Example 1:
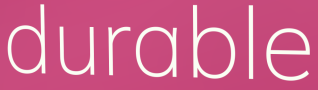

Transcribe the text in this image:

durable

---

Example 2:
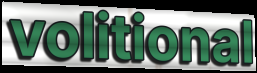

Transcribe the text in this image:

volitional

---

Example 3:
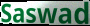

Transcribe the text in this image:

Saswad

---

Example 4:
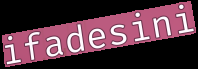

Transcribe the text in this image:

ifadesini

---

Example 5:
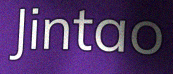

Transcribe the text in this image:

Jintao